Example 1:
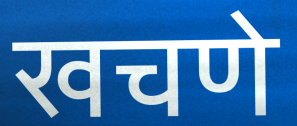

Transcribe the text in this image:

खचणे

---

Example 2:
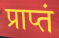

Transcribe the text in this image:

प्राप्तं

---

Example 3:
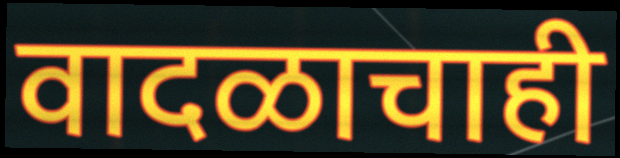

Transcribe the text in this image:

वादळाचाही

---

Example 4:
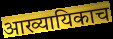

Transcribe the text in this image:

आख्यायिकाच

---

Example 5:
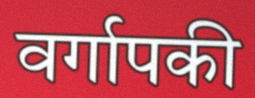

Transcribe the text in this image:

वर्गापकी